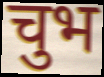
चुभ